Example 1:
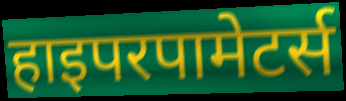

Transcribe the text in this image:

हाइपरपामेटर्स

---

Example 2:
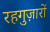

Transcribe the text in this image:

रहगुज़ारों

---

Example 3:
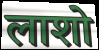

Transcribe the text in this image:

लाशो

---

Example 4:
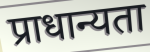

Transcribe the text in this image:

प्राधान्यता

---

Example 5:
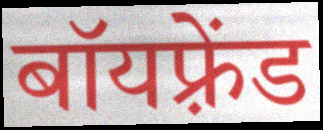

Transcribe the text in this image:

बॉयफ़्रेंड